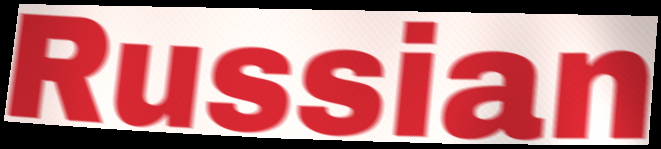
Russian